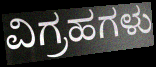
ವಿಗ್ರಹಗಳು